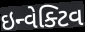
ઇન્વેક્ટિવ